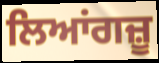
ਲਿਆਂਗਜ਼ੂ